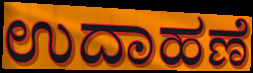
ಉದಾಹಣೆ